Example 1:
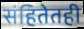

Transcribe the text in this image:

संहितेतही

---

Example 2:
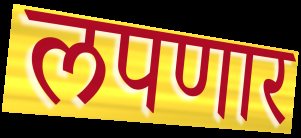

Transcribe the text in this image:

लपणार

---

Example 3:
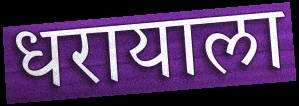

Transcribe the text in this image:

धरायाला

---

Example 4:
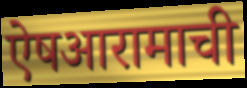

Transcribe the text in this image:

ऐषआरामाची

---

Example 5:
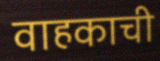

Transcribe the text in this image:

वाहकाची